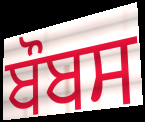
ਬੌਬਸ